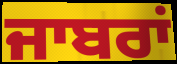
ਜਾਬਰਾਂ